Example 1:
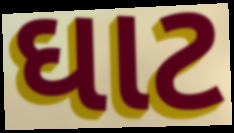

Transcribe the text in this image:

ઘાટ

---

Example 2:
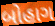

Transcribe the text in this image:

બોહાગ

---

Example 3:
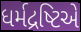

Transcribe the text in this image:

ધર્મદ્રષ્ટિએ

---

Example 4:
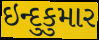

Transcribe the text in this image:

ઇન્દુકુમાર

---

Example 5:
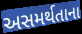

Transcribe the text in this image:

અસમર્થતાના